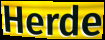
Herde